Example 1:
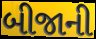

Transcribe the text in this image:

બીજાની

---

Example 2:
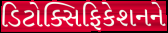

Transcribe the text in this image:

ડિટોક્સિફિકેશનને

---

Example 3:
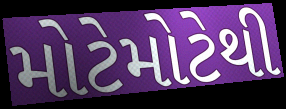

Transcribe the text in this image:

મોટેમોટેથી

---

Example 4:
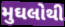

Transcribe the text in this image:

મુઘલોથી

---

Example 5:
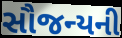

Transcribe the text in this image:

સૌજન્યની